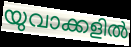
യുവാക്കളിൽ